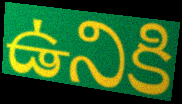
ఉనికి